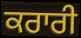
ਕਰਾਰੀ